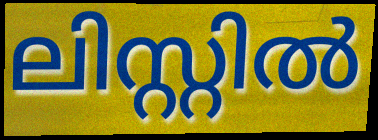
ലിസ്റ്റിൽ